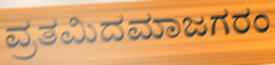
ವ್ರತಮಿದಮಾಜಗರಂ